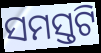
ସମସ୍ତଟି